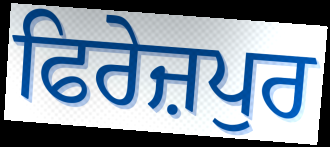
ਫਿਰੇਜ਼ਪੁਰ